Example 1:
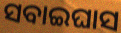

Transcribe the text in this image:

ସବାଇଘାସ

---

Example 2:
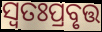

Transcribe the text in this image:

ସ୍ୱତଃପ୍ରବୃତ୍ତ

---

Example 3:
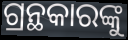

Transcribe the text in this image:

ଗ୍ରନ୍ଥକାରଙ୍କୁ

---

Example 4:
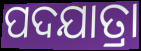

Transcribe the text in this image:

ପଦଯାତ୍ରା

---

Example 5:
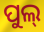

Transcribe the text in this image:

ପୁଲ୍